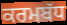
ਕਰਮਬੱਧ